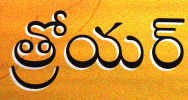
త్రోయర్